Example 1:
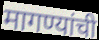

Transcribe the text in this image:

मागण्यांची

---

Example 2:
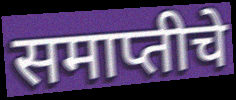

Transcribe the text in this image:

समाप्तीचे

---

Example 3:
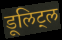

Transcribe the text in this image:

डूलिट्ल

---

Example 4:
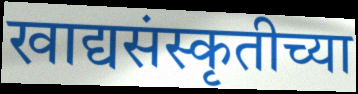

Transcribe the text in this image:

खाद्यसंस्कृतीच्या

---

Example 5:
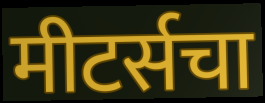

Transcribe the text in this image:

मीटर्सचा